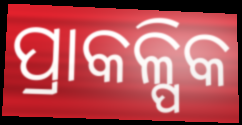
ପ୍ରାକଳ୍ପିକ